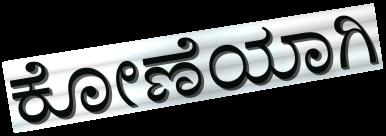
ಕೋಣೆಯಾಗಿ